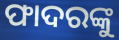
ଫାଦରଙ୍କୁ